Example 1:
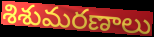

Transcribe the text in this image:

శిశుమరణాలు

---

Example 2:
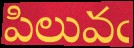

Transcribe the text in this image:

పిలువఁ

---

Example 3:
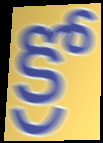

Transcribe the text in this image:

క్రో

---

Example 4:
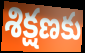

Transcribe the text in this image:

శిక్షణకు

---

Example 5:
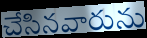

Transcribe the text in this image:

చేసినవారును